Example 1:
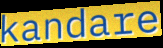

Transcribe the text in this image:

kandare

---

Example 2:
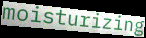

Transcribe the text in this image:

moisturizing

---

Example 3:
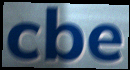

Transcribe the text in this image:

cbe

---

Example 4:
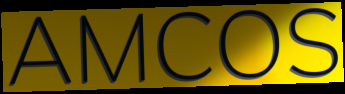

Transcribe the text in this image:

AMCOS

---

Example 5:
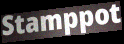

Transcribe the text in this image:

Stamppot